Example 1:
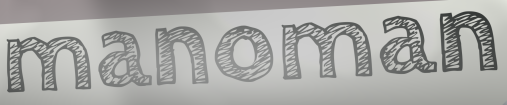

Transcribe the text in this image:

manoman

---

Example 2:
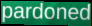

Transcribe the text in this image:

pardoned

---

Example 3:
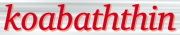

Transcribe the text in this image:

koabaththin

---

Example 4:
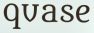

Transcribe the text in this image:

quase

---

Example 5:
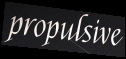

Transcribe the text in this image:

propulsive